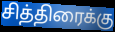
சித்திரைக்கு